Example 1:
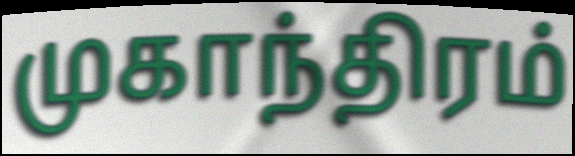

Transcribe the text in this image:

முகாந்திரம்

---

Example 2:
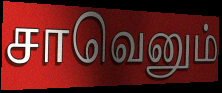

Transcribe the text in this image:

சாவெனும்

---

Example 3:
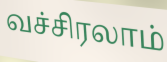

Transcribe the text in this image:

வச்சிரலாம்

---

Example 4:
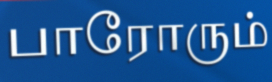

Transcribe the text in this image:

பாரோரும்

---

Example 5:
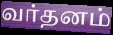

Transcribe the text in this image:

வர்தனம்